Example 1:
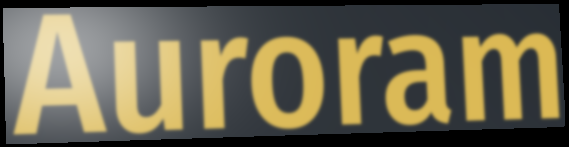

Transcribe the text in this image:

Auroram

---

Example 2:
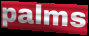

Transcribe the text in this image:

palms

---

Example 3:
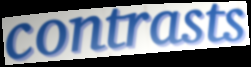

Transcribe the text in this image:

contrasts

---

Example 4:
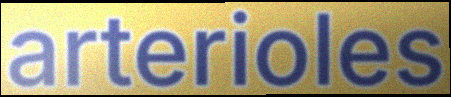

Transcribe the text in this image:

arterioles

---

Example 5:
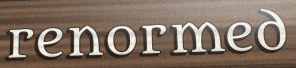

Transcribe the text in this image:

renormed